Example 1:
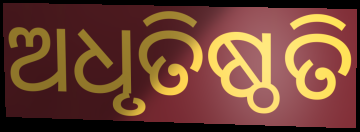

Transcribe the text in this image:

ଅଧୃତିଷ୍ଠତି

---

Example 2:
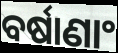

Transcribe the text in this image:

ବର୍ଷାଣାଂ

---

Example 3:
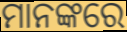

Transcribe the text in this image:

ମାନଙ୍କରେ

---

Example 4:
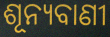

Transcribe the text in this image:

ଶୂନ୍ୟବାଣୀ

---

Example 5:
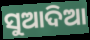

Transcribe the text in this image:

ସୁଆଦିଆ